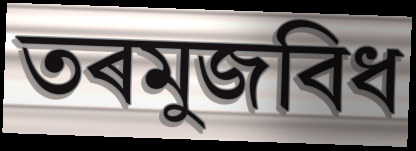
তৰমুজবিধ